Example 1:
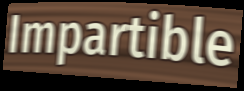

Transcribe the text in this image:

Impartible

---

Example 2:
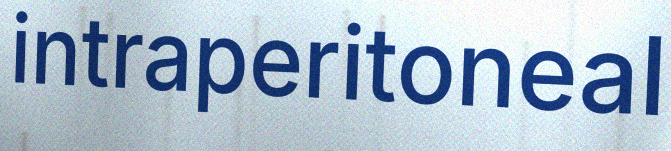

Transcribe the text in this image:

intraperitoneal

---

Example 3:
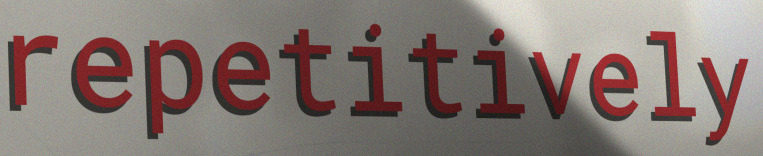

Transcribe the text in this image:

repetitively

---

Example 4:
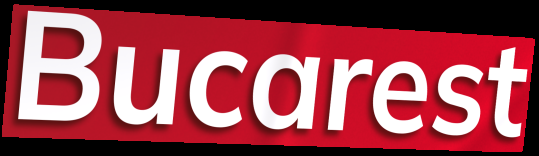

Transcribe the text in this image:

Bucarest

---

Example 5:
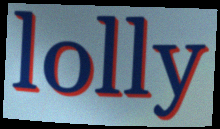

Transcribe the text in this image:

lolly